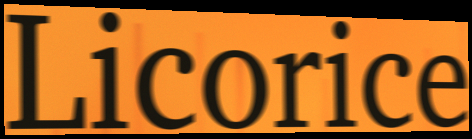
Licorice